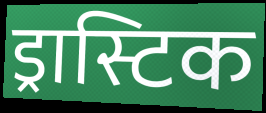
ड्रास्टिक